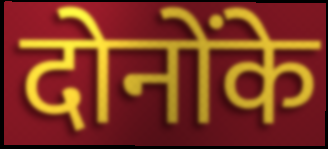
दोनोंके